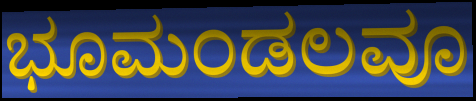
ಭೂಮಂಡಲವೂ